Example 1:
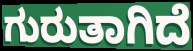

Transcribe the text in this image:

ಗುರುತಾಗಿದೆ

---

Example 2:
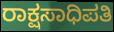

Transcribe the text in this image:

ರಾಕ್ಷಸಾಧಿಪತಿ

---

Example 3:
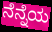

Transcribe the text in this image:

ನೆನ್ನೆಯ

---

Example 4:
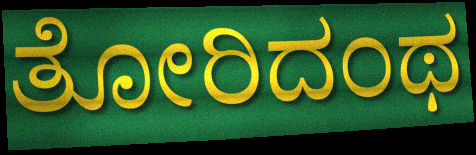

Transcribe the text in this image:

ತೋರಿದಂಥ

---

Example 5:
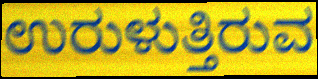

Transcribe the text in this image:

ಉರುಳುತ್ತಿರುವ